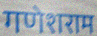
गणेशराम